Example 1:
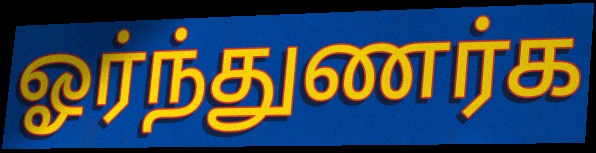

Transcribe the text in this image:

ஓர்ந்துணர்க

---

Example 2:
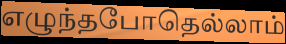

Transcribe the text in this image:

எழுந்தபோதெல்லாம்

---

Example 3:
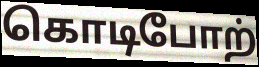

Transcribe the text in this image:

கொடிபோற்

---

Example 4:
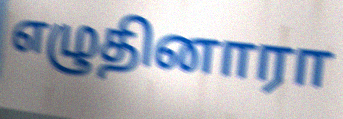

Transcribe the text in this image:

எழுதினாரா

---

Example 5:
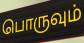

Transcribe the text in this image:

பொருவும்